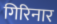
गिरिनार